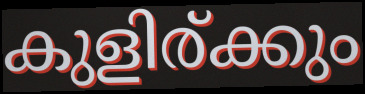
കുളിര്ക്കും